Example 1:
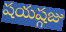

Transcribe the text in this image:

షయష్గజు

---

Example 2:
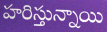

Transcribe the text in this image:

హరిస్తున్నాయి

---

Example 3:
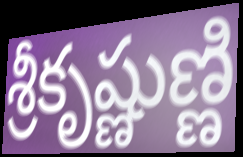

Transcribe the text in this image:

శ్రీకృష్ణుణ్ణి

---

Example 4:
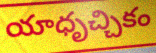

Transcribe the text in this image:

యాధృచ్చికం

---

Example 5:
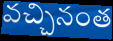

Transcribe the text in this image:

వచ్చినంత